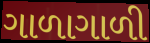
ગાળાગાળી